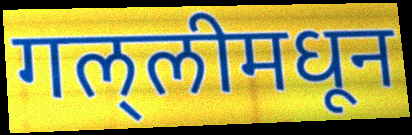
गल्लीमधून